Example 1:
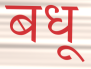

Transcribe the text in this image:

बधू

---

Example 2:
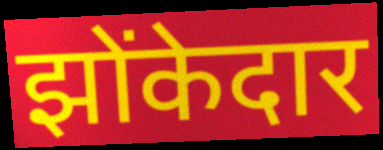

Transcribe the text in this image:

झोंकेदार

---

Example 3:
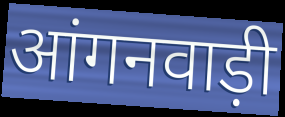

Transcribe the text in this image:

आंगनवाड़ी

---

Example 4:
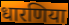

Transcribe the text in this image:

धारणिया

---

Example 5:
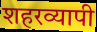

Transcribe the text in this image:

शहरव्यापी